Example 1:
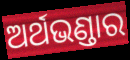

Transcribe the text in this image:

ଅର୍ଥଭଣ୍ଡାର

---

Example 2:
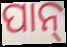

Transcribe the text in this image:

ପାନ୍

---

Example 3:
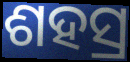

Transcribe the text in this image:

ଶହସ୍ର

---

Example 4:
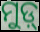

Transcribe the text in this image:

ମୁଡ଼୍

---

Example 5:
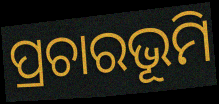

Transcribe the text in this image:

ପ୍ରଚାରଭୂମି